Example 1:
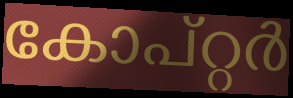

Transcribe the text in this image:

കോപ്റ്റർ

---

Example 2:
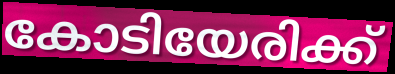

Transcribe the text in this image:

കോടിയേരിക്ക്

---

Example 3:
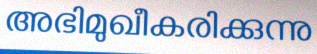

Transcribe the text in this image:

അഭിമുഖീകരിക്കുന്നു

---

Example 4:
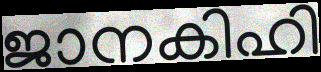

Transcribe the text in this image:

ജാനകിഹി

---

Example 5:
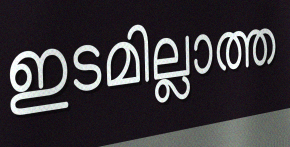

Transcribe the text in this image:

ഇടമില്ലാത്ത